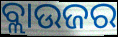
ବ୍ଲାଉଜର